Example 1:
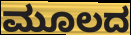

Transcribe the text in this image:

ಮೂಲದ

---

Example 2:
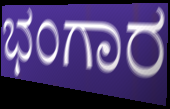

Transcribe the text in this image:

ಭಂಗಾರ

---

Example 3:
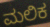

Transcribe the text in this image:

ಮಲಿಕ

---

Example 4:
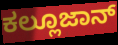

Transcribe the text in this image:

ಕಲ್ಲೂಜಾನ್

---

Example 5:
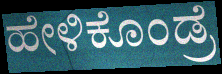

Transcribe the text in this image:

ಹೇಳಿಕೊಂಡ್ರೆ